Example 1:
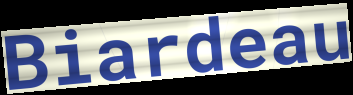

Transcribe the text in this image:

Biardeau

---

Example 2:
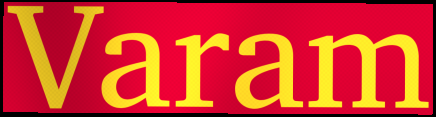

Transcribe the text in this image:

Varam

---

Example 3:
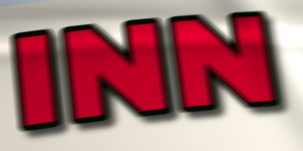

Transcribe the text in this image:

INN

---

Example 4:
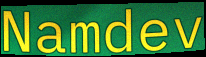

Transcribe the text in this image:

Namdev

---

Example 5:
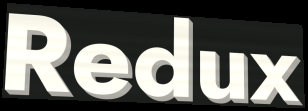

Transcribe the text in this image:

Redux